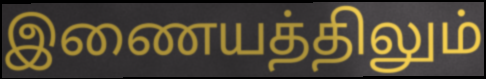
இணையத்திலும்